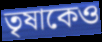
তৃষাকেও